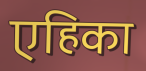
एहिका